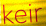
keir